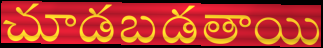
చూడబడతాయి